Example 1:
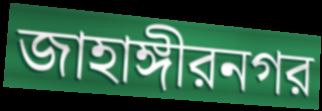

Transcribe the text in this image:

জাহাঙ্গীরনগর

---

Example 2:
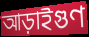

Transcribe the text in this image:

আড়াইগুণ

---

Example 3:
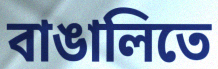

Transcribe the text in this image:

বাঙালিতে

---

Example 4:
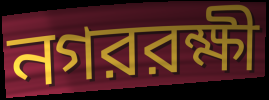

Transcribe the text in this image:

নগররক্ষী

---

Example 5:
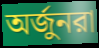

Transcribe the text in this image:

অর্জুনরা